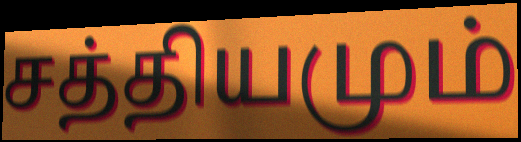
சத்தியமும்